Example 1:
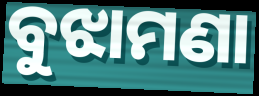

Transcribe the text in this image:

ବୁଝାମଣା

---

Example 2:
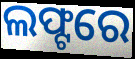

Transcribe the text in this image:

ଲଫ୍ଟରେ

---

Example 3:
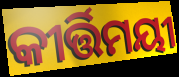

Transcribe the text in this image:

କୀର୍ତ୍ତିମୟୀ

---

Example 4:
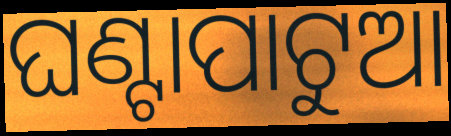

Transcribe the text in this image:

ଘଣ୍ଟାପାଟୁଆ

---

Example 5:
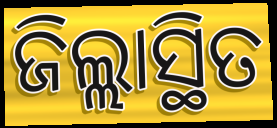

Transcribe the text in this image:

ଜିଲ୍ଲାସ୍ଥିତ